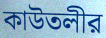
কাউতলীর